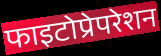
फाइटोप्रेपरेशन